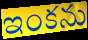
ఇంకను